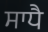
ਸਾਧੈ